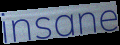
insane